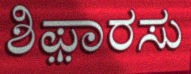
ಶಿಫ಼ಾರಸು